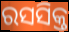
ରସସିକ୍ତ